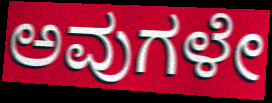
ಅವುಗಳೇ